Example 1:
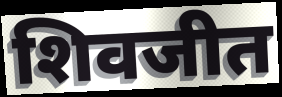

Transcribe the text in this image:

शिवजीत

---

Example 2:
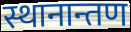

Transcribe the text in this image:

स्थानान्तण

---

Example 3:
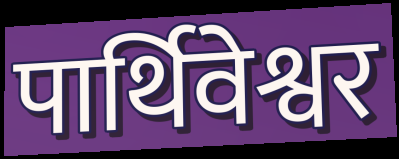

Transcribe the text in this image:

पार्थिवेश्वर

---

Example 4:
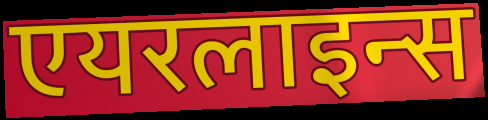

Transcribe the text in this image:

एयरलाइन्स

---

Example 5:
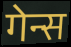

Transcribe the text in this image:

गेन्स